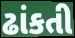
ઢાંકતી